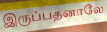
இருப்பதனாலே